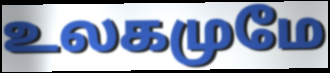
உலகமுமே